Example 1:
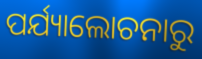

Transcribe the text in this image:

ପର୍ଯ୍ୟାଲୋଚନାରୁ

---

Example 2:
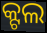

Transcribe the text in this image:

କ୍ଟଲ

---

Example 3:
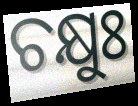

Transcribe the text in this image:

ଚକ୍ଷୁଃ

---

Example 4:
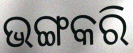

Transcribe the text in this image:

ଭଙ୍ଗକରି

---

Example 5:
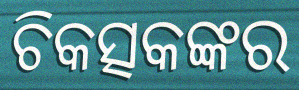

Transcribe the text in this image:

ଚିକତ୍ସକଙ୍କର